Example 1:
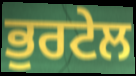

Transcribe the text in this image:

ਭੁਰਟੇਲ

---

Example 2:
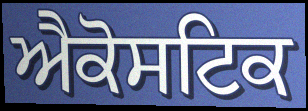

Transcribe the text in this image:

ਐਕੋਸਟਿਕ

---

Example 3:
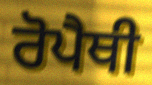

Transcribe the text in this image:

ਰੋਪੈਥੀ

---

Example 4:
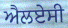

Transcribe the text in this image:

ਐਲਏਸੀ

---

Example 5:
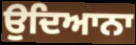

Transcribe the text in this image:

ਉਦਿਆਨਾ